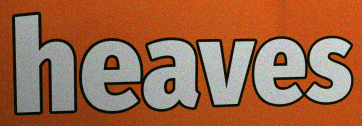
heaves